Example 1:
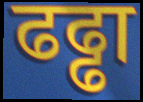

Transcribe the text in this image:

ढढ्ढा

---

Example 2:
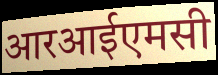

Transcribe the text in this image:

आरआईएमसी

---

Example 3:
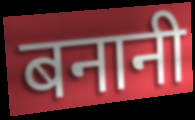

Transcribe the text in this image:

बनानी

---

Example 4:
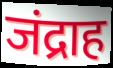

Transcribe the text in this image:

जंद्राह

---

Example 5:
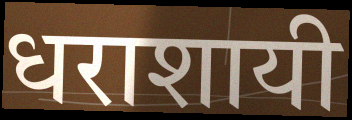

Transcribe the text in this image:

धराशायी